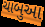
ચાબુઆ